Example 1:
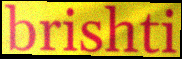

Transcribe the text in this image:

brishti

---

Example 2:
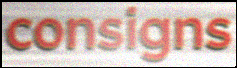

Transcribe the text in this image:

consigns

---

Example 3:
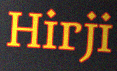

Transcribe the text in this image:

Hirji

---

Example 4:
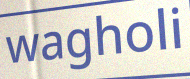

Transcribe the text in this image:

wagholi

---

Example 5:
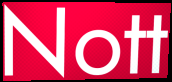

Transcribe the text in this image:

Nott